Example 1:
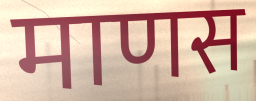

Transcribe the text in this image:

माणस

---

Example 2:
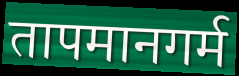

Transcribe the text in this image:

तापमानगर्म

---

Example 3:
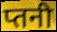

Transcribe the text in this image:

प्तनी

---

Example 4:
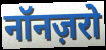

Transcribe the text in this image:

नॉनज़रो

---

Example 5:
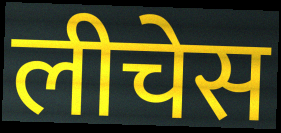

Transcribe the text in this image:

लीचेस